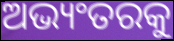
ଅଭ୍ୟଂତରକୁ